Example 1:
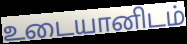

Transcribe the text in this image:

உடையானிடம்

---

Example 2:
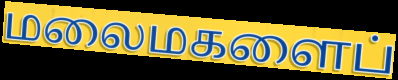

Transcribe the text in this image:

மலைமகளைப்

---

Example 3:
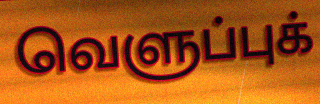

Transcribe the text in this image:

வெளுப்புக்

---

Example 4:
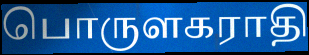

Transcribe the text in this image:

பொருளகராதி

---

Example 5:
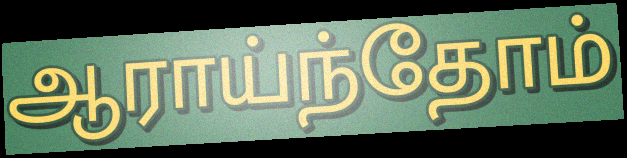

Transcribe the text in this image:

ஆராய்ந்தோம்